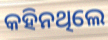
କହିନଥିଲେ